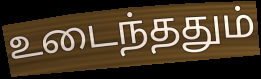
உடைந்ததும்